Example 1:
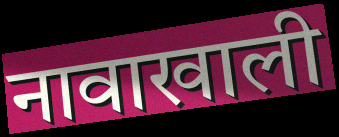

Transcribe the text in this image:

नावाखाली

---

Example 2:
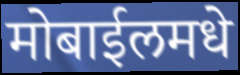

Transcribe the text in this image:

मोबाईलमधे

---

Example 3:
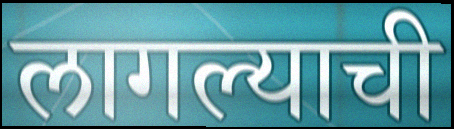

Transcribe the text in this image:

लागल्याची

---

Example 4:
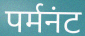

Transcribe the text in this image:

पर्मनंट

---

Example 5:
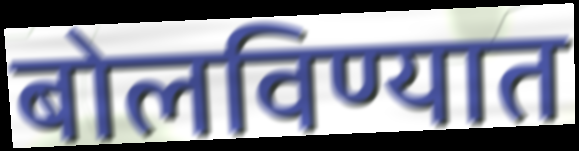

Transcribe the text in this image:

बोलविण्यात